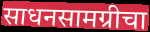
साधनसामग्रीचा